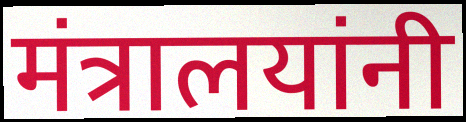
मंत्रालयांनी